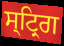
ਸ੍ਟ੍ਰਿਗ